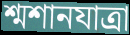
শ্মশানযাত্রা